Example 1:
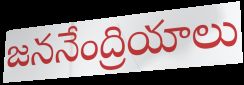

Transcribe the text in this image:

జననేంద్రియాలు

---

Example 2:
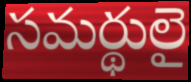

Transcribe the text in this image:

సమర్థులై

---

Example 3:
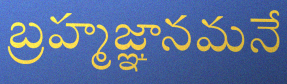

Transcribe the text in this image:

బ్రహ్మజ్ఞానమనే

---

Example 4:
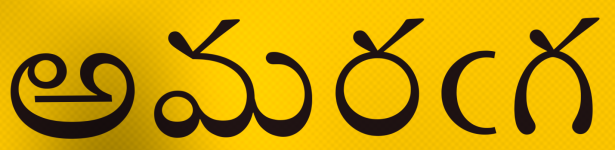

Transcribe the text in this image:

అమరఁగ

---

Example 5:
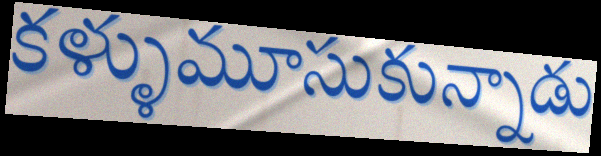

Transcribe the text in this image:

కళ్ళుమూసుకున్నాడు